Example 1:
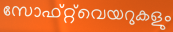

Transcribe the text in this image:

സോഫ്റ്റ്‌വെയറുകളും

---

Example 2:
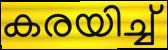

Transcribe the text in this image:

കരയിച്ച്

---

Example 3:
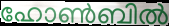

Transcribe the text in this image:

ഹോൺബിൽ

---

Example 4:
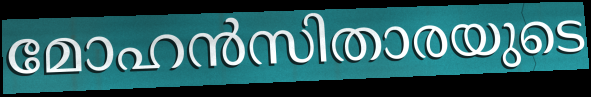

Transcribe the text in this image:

മോഹൻസിതാരയുടെ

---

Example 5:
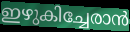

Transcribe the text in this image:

ഇഴുകിച്ചേരാൻ